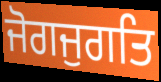
ਜੋਗਜੁਗਤਿ